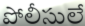
పోలీసులే